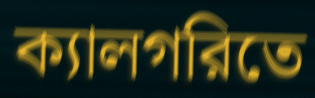
ক্যালগরিতে